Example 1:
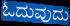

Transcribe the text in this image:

ಓದುವುದು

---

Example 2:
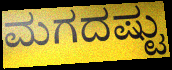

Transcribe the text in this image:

ಮಗದಷ್ಟು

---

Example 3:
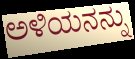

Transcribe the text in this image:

ಅಳಿಯನನ್ನು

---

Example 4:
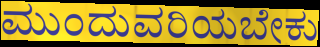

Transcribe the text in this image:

ಮುಂದುವರಿಯಬೇಕು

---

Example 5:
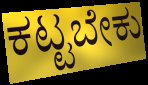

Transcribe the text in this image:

ಕಟ್ಟಬೇಕು